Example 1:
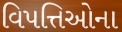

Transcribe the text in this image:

વિપત્તિઓના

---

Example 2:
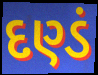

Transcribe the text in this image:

દણ્ડં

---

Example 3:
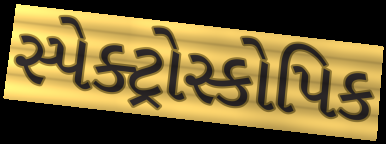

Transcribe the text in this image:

સ્પેક્ટ્રોસ્કોપિક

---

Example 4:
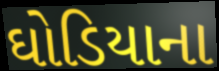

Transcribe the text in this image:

ઘોડિયાના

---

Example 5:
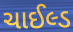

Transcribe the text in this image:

ચાઈલ્ડ